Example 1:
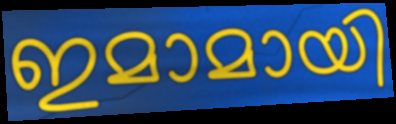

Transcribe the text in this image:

ഇമാമായി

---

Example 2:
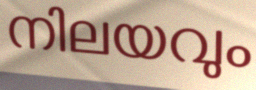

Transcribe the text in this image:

നിലയവും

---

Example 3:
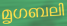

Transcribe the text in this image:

മൃഗബലി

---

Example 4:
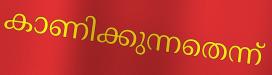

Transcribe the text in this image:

കാണിക്കുന്നതെന്ന്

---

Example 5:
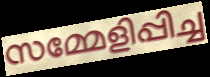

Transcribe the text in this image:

സമ്മേളിപ്പിച്ച